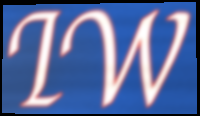
IW